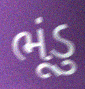
ભૂંડુ